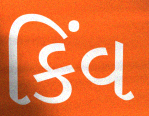
કિંવ